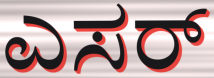
ಎಸರ್